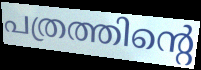
പത്രത്തിന്റെ